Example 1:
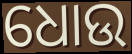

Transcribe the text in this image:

ଧୋଉ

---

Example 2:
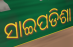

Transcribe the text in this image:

ସାଇପଡିଶା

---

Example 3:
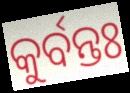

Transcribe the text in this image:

କୁର୍ବନ୍ତଃ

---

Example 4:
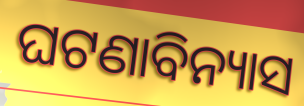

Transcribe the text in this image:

ଘଟଣାବିନ୍ୟାସ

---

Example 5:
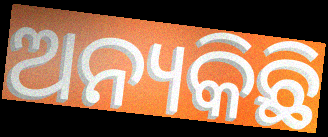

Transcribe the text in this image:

ଅନ୍ୟକିଛି